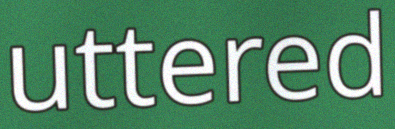
uttered